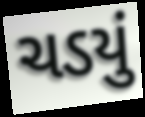
ચડયું